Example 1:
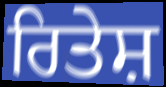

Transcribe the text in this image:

ਰਿਤੇਸ਼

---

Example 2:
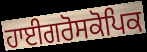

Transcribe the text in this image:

ਹਾਈਗਰੋਸਕੋਪਿਕ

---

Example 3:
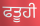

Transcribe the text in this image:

ਫਤੂਹੀ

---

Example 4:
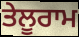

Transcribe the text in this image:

ਤੇਲੂਰਾਮ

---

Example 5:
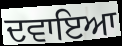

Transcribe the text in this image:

ਦਵਾਇਆ